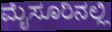
ಮೈಸೂರಿನಲ್ಲಿ